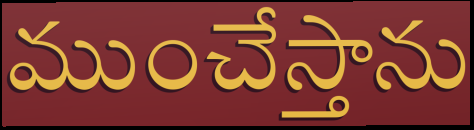
ముంచేస్తాను